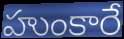
హుంకారే